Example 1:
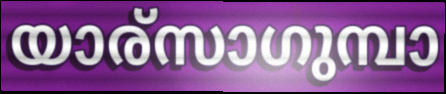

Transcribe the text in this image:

യാര്സാഗുമ്പാ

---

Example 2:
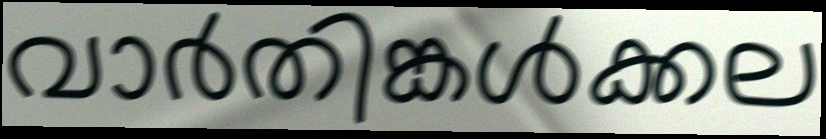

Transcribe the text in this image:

വാർതിങ്കൾക്കല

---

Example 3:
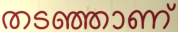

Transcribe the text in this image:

തടഞ്ഞാണ്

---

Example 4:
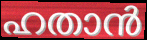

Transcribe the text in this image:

ഹതാൻ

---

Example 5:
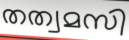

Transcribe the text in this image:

തത്വമസി